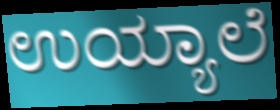
ಉಯ್ಯಾಲೆ